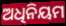
ଅଧିନିୟମ